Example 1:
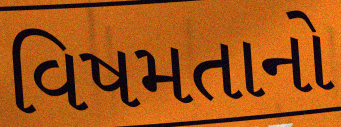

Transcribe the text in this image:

વિષમતાનો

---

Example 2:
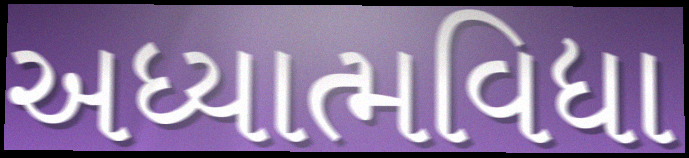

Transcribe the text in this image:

અધ્યાત્મવિદ્યા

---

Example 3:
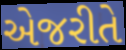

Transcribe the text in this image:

એજરીતે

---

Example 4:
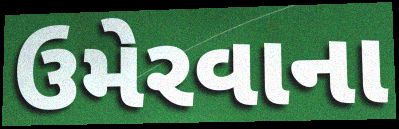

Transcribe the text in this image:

ઉમેરવાના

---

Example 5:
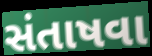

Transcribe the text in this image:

સંતાષવા